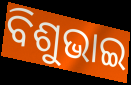
ବିଶୁଭାଇ